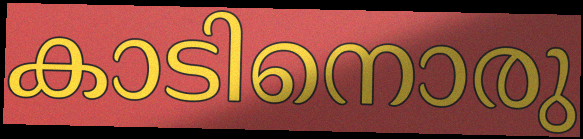
കാടിനൊരു